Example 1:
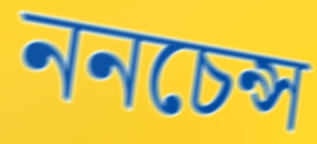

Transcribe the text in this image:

ননচেন্স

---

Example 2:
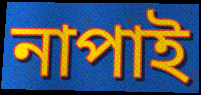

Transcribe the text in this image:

নাপাই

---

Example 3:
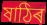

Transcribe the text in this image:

ষাঠিৰ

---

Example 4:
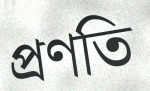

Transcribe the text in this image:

প্ৰণতি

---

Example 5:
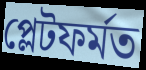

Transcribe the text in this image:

প্লেটফৰ্মত